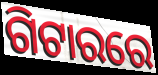
ଗିଟାରରେ